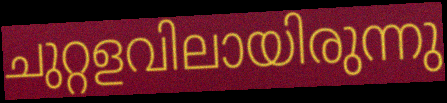
ചുറ്റളവിലായിരുന്നു